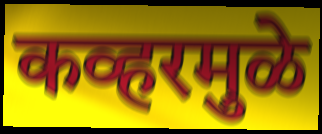
कव्हरमुळे